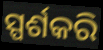
ସ୍ପର୍ଶକରି